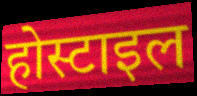
होस्टाइल